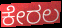
ಕೇರಲ